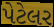
પેટેલર